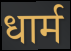
धार्म